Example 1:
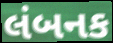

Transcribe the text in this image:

લંબનક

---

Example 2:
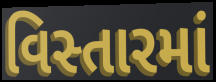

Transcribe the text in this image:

વિસ્તારમાં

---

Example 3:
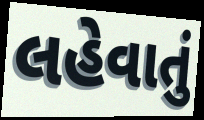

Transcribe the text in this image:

લહેવાતું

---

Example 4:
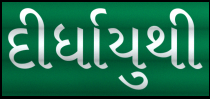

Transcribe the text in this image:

દીર્ધાયુથી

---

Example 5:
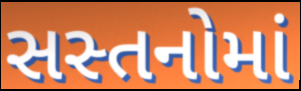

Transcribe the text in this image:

સસ્તનોમાં